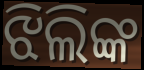
ଝିଲିଙ୍କ